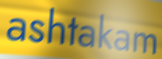
ashtakam